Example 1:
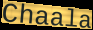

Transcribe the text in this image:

Chaala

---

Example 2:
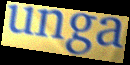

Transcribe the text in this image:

unga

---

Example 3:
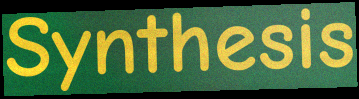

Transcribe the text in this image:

Synthesis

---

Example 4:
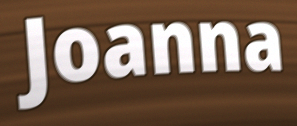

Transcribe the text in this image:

Joanna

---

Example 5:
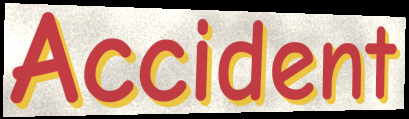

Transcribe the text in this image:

Accident